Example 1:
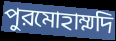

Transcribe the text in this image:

পুরমোহাম্মদি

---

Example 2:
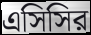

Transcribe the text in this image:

এসিসির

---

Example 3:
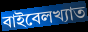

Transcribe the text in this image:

বাইবেলখ্যাত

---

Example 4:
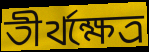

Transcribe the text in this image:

তীর্থক্ষেত্র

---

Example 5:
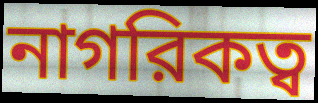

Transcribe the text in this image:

নাগরিকত্ব